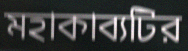
মহাকাব্যটির